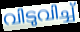
വിടുവിച്ച്